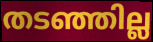
തടഞ്ഞില്ല